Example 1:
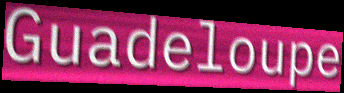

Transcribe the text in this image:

Guadeloupe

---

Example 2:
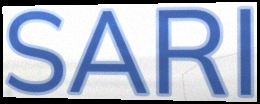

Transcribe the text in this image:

SARI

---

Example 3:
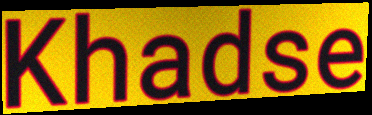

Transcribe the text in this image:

Khadse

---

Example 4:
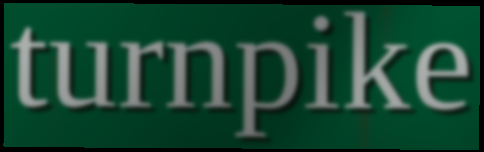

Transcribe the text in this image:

turnpike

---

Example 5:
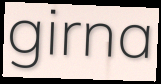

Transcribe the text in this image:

girna